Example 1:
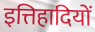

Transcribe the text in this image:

इत्तिहादियों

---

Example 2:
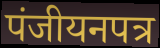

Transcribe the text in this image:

पंजीयनपत्र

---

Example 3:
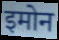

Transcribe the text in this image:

इमोन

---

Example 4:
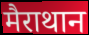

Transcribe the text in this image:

मैराथान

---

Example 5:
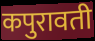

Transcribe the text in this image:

कपुरावती